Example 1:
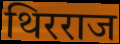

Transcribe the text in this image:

थिरराज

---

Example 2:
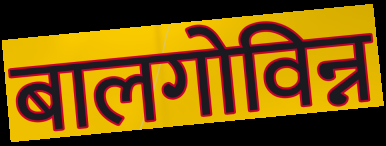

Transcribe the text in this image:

बालगोविन्न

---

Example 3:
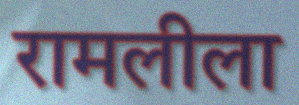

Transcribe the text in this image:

रामलीला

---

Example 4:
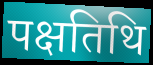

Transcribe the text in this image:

पक्षतिथि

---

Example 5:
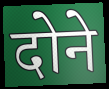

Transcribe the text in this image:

दोने